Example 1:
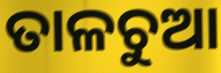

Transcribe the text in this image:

ତାଳଚୁଆ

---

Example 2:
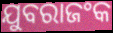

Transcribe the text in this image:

ଯୁବରାଜଂକ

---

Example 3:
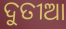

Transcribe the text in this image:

ଦୁତୀଆ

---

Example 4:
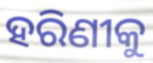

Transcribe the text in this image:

ହରିଣୀକୁ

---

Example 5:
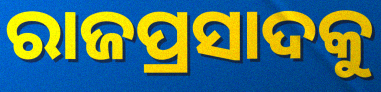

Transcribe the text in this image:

ରାଜପ୍ରସାଦକୁ